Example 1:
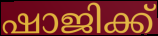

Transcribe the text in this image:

ഷാജിക്ക്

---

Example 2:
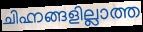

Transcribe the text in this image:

ചിഹ്നങ്ങളില്ലാത്ത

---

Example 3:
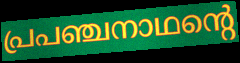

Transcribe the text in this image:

പ്രപഞ്ചനാഥന്റെ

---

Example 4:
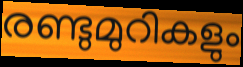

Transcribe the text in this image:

രണ്ടുമുറികളും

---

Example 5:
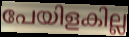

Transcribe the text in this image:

പേയിളകില്ല